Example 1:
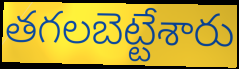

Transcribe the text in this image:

తగలబెట్టేశారు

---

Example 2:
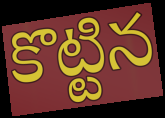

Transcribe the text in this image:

కొట్టిన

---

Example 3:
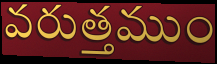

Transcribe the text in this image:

వరుత్తముం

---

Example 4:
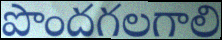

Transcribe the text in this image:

పొందగలగాలి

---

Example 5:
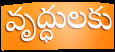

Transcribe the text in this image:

వృద్ధులకు